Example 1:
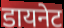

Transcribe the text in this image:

डायनेट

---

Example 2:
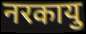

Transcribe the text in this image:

नरकायु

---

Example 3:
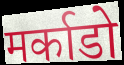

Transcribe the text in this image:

मर्काडो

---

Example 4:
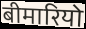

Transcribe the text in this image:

बीमारियो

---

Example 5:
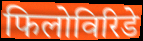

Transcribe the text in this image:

फिलोविरिडे